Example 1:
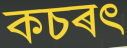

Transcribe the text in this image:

কচৰৎ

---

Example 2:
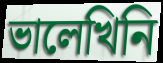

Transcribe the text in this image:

ভালেখিনি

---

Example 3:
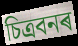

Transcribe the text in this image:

চিত্ৰবনৰ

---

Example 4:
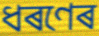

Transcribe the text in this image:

ধৰণেৰ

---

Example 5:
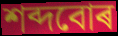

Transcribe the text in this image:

শব্দবোৰ